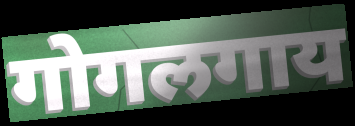
गोगलगाय